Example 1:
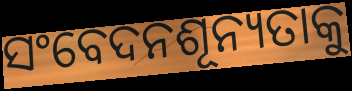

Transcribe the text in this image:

ସଂବେଦନଶୂନ୍ୟତାକୁ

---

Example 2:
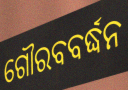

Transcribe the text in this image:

ଗୌରବବର୍ଦ୍ଧନ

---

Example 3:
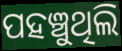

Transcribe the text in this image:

ପହଞ୍ଚୁଥିଲି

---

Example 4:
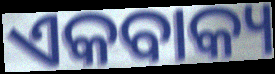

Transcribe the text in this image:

ଏକବାକ୍ୟ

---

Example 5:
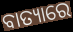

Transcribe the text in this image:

ବାତ୍ୟାରେ